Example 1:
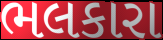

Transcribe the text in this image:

ભલકારા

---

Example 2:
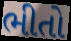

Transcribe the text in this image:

ભીતો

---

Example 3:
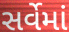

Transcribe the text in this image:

સર્વેમાં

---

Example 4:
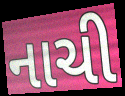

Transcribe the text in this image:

નાચી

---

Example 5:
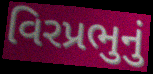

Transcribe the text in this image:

વિરપ્રભુનું